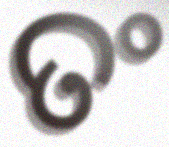
ତଂ